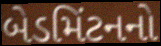
બેડમિંટનનો